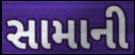
સામાની